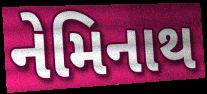
નેમિનાથ